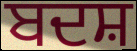
ਬਦਸ਼